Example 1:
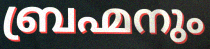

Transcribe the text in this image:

ബ്രഹ്മനും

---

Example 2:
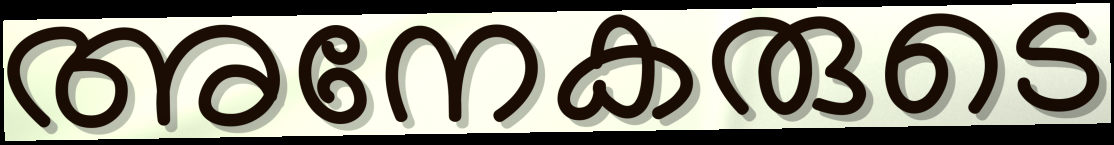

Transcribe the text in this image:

അനേകരുടെ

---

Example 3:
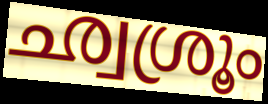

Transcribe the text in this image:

ഛ്വശ്രൂം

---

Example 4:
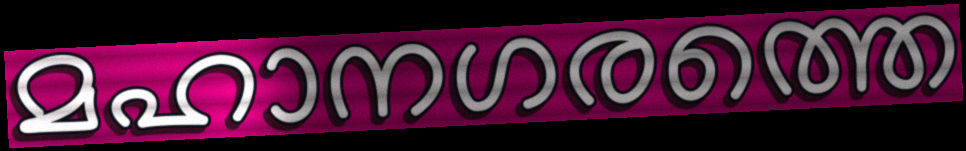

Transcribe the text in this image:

മഹാനഗരത്തെ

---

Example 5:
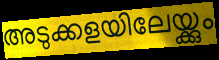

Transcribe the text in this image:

അടുക്കളയിലേയ്ക്കും